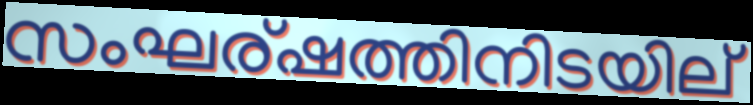
സംഘര്ഷത്തിനിടയില്